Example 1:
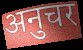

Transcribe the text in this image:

अनुचर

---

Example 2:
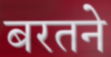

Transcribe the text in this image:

बरतने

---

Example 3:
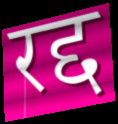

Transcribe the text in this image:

रद्द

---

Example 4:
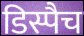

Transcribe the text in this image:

डिस्पैच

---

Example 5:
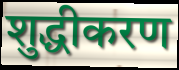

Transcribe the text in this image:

शुद्धीकरण